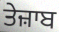
ਤੇਜ਼ਾਬ